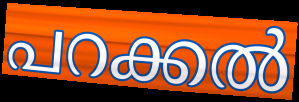
പറക്കൽ